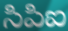
సిపిఐ